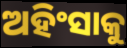
ଅହିଂସାକୁ